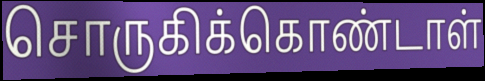
சொருகிக்கொண்டாள்